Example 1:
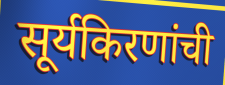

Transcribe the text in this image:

सूर्यकिरणांची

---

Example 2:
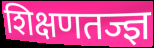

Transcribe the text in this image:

शिक्षणतज्ज्ञ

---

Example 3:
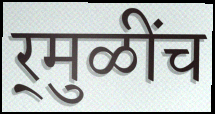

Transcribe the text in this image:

र्मुळींच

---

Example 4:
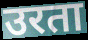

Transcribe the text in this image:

उरता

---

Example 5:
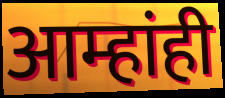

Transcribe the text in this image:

आम्हांही